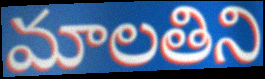
మాలతిని